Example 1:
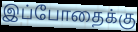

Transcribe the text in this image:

இப்போதைக்கு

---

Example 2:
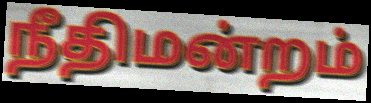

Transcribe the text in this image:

நீதிமன்றம்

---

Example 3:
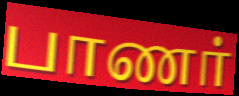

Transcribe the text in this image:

பாணர்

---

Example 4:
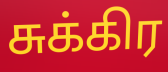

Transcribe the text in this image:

சுக்கிர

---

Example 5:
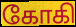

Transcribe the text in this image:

கோகி